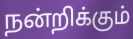
நன்றிக்கும்